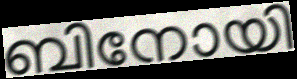
ബിനോയി